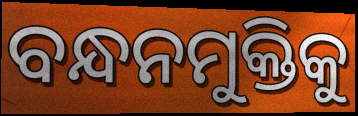
ବନ୍ଧନମୁକ୍ତିକୁ